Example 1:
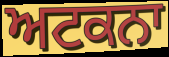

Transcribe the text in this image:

ਅਟਕਨਾ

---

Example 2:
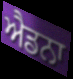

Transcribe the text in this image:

ਐਡਨਾ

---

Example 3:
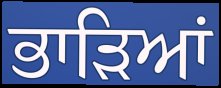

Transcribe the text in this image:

ਭਾੜਿਆਂ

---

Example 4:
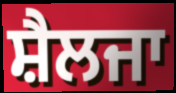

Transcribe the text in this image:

ਸ਼ੈਲਜਾ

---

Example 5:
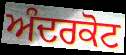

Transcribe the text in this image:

ਅੰਦਰਕੋਟ